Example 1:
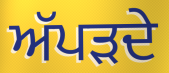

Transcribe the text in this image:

ਅੱਪੜਦੇ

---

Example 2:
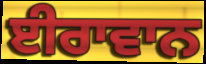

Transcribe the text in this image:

ਈਰਾਵਾਨ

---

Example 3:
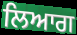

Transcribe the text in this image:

ਲਿਆਗ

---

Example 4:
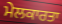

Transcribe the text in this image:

ਮੇਲਕਾਰਤਾ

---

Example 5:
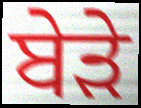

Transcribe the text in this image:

ਬੇੜੇ